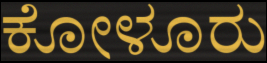
ಕೋಳೂರು